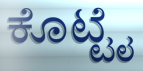
ಕೊಟ್ಟೈ